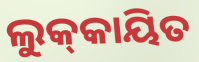
ଲୁକ୍‌କାୟିତ